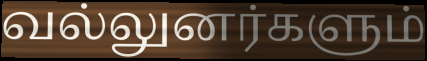
வல்லுனர்களும்